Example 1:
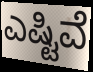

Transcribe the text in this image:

ಎಷ್ಟಿವೆ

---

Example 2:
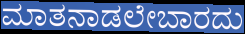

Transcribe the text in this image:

ಮಾತನಾಡಲೇಬಾರದು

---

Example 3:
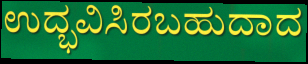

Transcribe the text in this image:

ಉದ್ಭವಿಸಿರಬಹುದಾದ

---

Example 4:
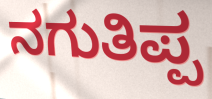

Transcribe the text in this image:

ನಗುತಿಪ್ಪ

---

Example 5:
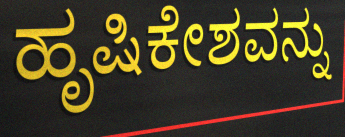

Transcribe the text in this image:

ಹೃಷಿಕೇಶವನ್ನು